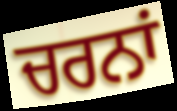
ਚਰਨਾਂ